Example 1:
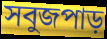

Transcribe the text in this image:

সবুজপাড়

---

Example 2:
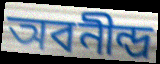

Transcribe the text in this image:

অবনীন্দ্র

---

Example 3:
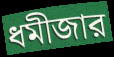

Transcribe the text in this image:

ধমীজার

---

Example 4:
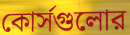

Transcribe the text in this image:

কোর্সগুলোর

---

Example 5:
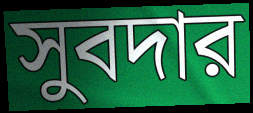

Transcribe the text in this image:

সুবদার